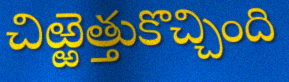
చిఱ్ఱెత్తుకొచ్చింది